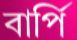
বার্পি